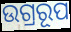
ଉଗ୍ରରୂପ